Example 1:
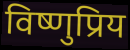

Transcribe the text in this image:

विष्णुप्रिय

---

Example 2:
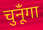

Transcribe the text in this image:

चुनूँगा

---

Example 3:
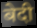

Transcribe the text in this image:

बेदी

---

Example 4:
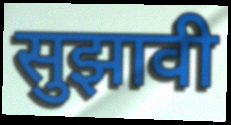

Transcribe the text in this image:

सुझावी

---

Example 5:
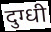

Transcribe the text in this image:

दुग्धी